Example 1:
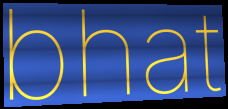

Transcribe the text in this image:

bhat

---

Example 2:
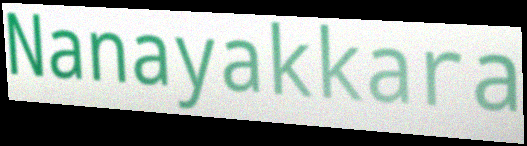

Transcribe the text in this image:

Nanayakkara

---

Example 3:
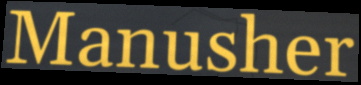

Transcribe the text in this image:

Manusher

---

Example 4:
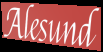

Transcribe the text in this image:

Alesund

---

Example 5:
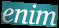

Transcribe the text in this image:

enim